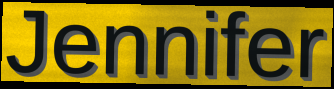
Jennifer